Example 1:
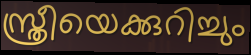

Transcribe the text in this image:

സ്ത്രീയെക്കുറിച്ചും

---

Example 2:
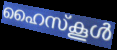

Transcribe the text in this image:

ഹൈസ്‌കൂൾ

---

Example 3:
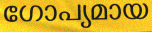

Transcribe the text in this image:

ഗോപ്യമായ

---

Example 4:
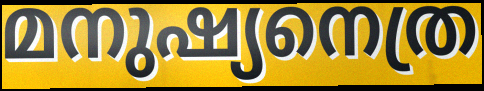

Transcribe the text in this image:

മനുഷ്യനെത്ര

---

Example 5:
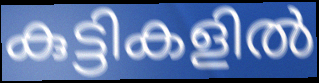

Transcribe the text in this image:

കുട്ടികളിൽ